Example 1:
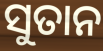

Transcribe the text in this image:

ସୁତାନ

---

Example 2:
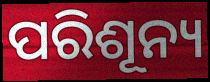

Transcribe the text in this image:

ପରିଶୂନ୍ୟ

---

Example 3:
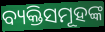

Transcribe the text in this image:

ବ୍ୟକ୍ତିସମୂହଙ୍କ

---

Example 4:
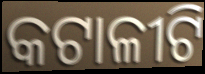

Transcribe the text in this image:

କଟାଳୀଟି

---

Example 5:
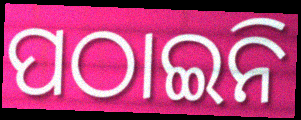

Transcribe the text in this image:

ପଠାଇନି